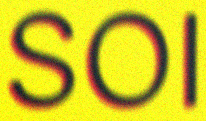
SOI